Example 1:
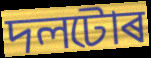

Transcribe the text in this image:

দলটোৰ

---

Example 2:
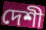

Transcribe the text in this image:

দেশী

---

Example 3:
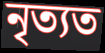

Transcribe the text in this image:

নৃত্যত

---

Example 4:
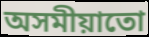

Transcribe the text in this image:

অসমীয়াতো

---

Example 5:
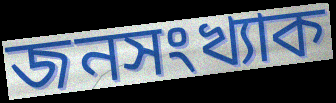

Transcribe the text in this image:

জনসংখ্যাক